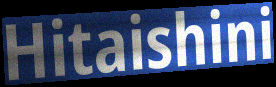
Hitaishini